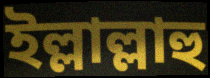
ইল্লাল্লাহু